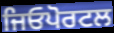
ਜਿਓਪੋਰਟਲ